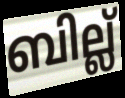
ബില്ല്